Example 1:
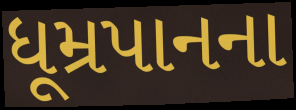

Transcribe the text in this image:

ધૂમ્રપાનના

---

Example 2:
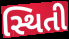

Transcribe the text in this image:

સ્થિતી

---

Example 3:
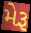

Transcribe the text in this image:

મેરૂ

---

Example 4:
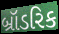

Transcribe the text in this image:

બ્રૉડરિક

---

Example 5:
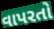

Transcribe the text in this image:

વાપરતો